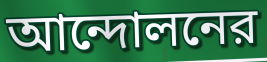
আন্দোলনের